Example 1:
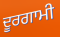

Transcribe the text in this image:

ਦੂਰਗਾਮੀ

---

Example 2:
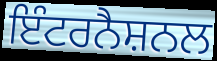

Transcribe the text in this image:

ਇੰਟਰਨੈਸ਼ਨਲ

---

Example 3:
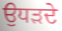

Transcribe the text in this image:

ਉਧੜਦੇ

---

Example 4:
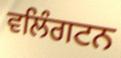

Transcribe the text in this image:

ਵਲਿੰਗਟਨ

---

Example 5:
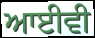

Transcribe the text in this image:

ਆਈਵੀ